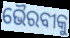
ଭୈରବୀକୁ